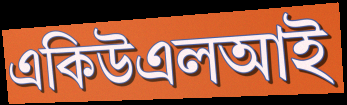
একিউএলআই